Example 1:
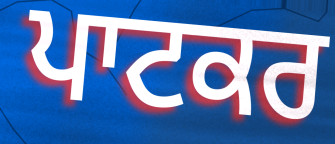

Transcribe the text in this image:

ਪਾਟਕਰ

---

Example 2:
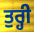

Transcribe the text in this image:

ਤੁਰ੍ਹੀ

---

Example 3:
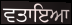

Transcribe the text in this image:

ਵਤਾਇਆ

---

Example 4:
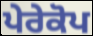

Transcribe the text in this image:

ਪੇਰੇਕੋਪ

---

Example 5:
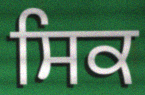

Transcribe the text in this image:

ਸਿਕ